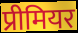
प्रीमियर